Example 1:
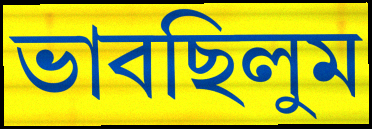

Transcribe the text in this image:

ভাবছিলুম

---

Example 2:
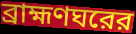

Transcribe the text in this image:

ব্রাহ্মণঘরের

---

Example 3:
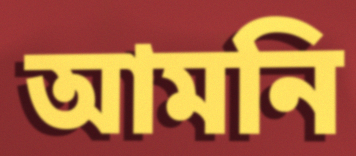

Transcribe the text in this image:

আমনি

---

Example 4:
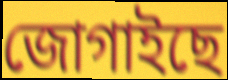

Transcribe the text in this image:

জোগাইছে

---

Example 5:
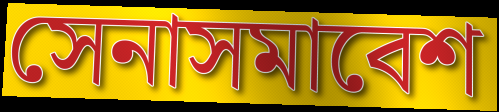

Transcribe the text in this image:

সেনাসমাবেশ